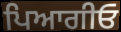
ਪਿਆਗੀਓ